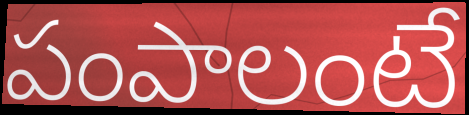
పంపాలంటే